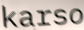
karso